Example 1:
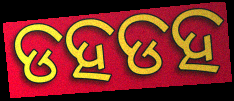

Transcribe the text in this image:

ଡହଡହ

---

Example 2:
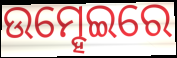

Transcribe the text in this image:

ଉମ୍ହେଇରେ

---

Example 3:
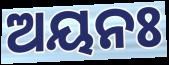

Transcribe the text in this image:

ଅୟନଃ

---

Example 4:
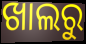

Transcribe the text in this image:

ଖାଲରୁ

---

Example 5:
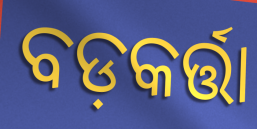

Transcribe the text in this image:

ବଡ଼କର୍ତ୍ତା